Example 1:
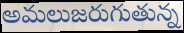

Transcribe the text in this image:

అమలుజరుగుతున్న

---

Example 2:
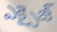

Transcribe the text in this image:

ఎక్సైజ్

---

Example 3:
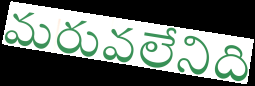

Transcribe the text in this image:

మరువలేనిది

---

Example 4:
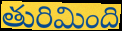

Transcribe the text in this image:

తురిమింది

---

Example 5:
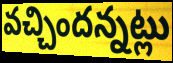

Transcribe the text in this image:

వచ్చిందన్నట్లు